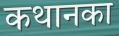
कथानका